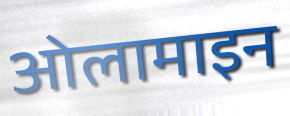
ओलामाइन